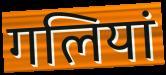
गलियां